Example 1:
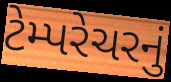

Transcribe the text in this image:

ટેમ્પરેચરનું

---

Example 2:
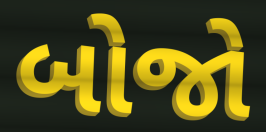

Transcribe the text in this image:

બોજો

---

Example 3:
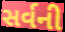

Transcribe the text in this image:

સર્વની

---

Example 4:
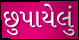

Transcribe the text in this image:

છુપાયેલું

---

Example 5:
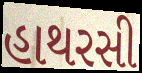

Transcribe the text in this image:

હાથરસી